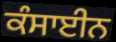
ਕੰਸਾਈਨ